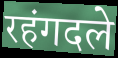
रहंगदले